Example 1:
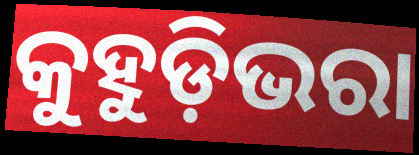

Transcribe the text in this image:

କୁହୁଡ଼ିଭରା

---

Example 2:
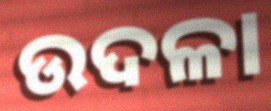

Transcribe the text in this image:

ଉଦଳା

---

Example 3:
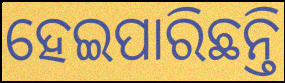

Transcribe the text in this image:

ହେଇପାରିଛନ୍ତି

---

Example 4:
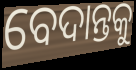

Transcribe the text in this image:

ବେଦାନ୍ତକୁ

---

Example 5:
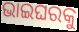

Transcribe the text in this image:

ଭାଇଘରକୁ